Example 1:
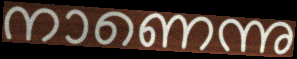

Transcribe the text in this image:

നാണെന്നു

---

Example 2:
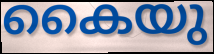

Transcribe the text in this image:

കൈയു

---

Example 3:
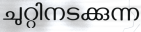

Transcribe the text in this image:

ചുറ്റിനടക്കുന്ന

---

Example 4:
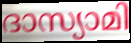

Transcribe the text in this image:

ദാസ്യാമി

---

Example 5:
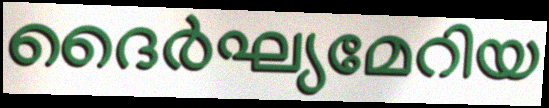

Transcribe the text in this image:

ദൈർഘ്യമേറിയ